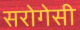
सरोगेसी